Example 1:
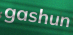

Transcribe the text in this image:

gashun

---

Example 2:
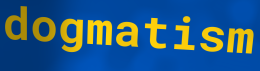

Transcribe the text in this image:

dogmatism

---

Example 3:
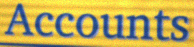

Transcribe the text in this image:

Accounts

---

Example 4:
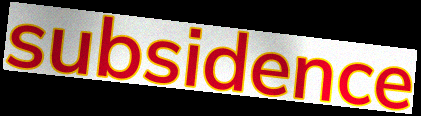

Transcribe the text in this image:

subsidence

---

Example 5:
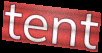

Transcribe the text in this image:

tent